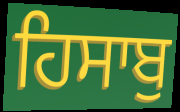
ਹਿਸਾਬੁ